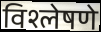
विश्लेषणे